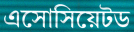
এসোসিয়েটড